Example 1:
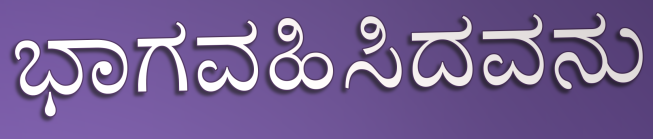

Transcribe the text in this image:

ಭಾಗವಹಿಸಿದವನು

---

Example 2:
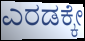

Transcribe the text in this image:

ಎರಡಕ್ಕೇ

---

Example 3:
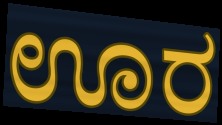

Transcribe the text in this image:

ಊರ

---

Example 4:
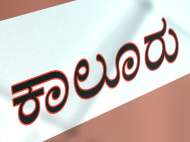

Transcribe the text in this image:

ಕಾಲೂರು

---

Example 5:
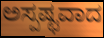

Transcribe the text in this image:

ಅಸ್ಪಷ್ಟವಾದ